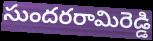
సుందరరామిరెడ్డి